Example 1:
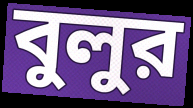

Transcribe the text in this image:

বুলুর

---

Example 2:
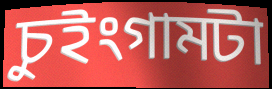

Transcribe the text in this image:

চুইংগামটা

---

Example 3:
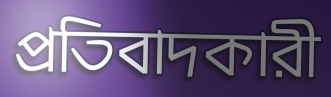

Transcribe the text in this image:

প্রতিবাদকারী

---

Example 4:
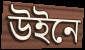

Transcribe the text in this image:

উইনে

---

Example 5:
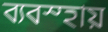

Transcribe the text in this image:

ব্যবস্হায়